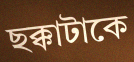
ছক্কাটাকে